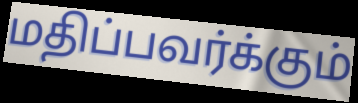
மதிப்பவர்க்கும்